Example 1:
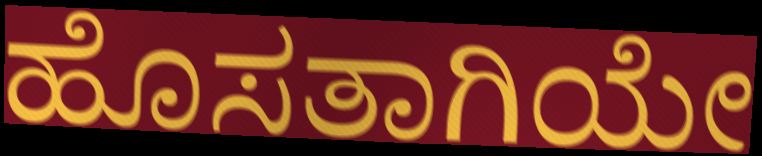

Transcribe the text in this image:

ಹೊಸತಾಗಿಯೇ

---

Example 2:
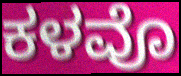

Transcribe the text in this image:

ಕಳವೊ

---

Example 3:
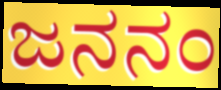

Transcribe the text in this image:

ಜನನಂ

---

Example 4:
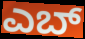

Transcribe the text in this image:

ಎಬ್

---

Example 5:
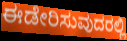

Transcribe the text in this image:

ಈಡೇರಿಸುವುದರಲ್ಲಿ